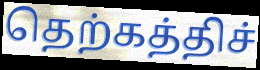
தெற்கத்திச்